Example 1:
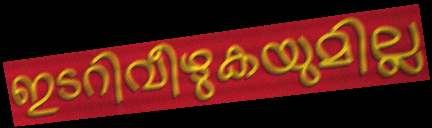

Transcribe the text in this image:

ഇടറിവീഴുകയുമില്ല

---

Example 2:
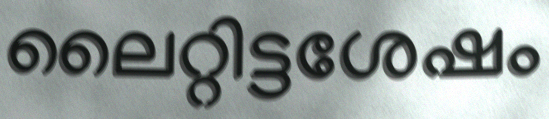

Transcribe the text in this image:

ലൈറ്റിട്ടശേഷം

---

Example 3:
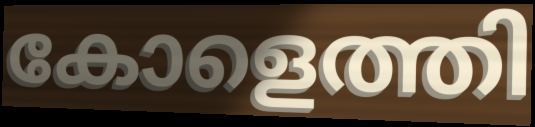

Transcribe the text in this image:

കോളെത്തി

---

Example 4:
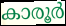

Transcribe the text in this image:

കാരൂർ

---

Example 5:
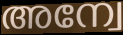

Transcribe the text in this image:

അന്വേ